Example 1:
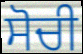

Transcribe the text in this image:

ਸੋਚੀ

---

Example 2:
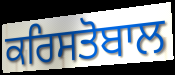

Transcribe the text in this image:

ਕਰਿਸਤੋਬਾਲ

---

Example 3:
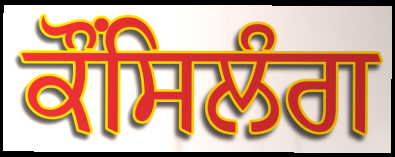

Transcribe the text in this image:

ਕੌਂਸਿਲੰਗ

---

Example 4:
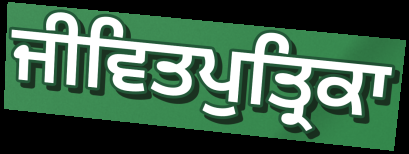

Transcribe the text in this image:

ਜੀਵਿਤਪੁਤ੍ਰਿਕਾ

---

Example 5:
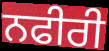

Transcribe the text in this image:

ਨਫੀਰੀ